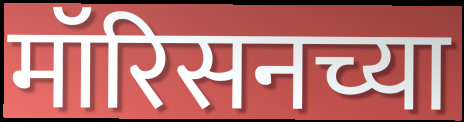
मॉरिसनच्या